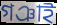
গঞাই